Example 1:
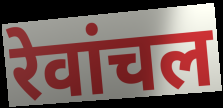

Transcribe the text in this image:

रेवांचल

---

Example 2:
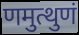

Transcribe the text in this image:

णमुत्थुणं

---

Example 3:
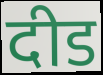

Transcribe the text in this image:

दीड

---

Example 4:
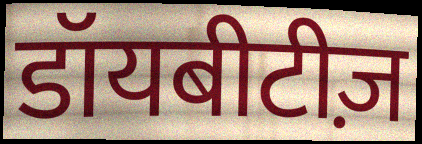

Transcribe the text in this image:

डॉयबीटीज़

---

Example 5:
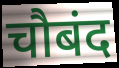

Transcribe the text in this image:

चौबंद